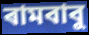
ৰামবাবু